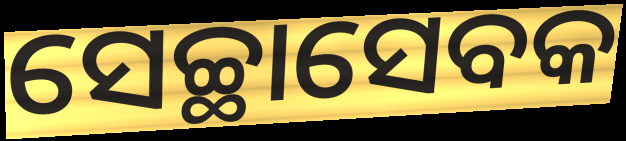
ସେଚ୍ଛାସେବକ